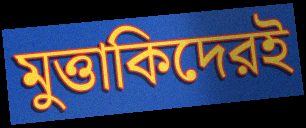
মুত্তাকিদেরই